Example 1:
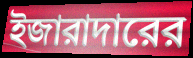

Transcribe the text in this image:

ইজারাদারের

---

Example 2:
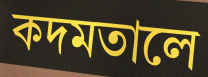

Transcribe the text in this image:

কদমতালে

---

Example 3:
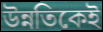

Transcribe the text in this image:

উন্নতিকেই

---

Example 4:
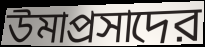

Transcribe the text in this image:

উমাপ্রসাদের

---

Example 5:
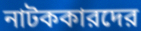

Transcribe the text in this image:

নাটককারদের